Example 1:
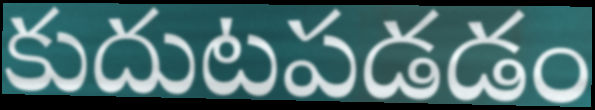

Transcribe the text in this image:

కుదుటపడడం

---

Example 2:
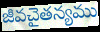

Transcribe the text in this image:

జీవచైతన్యము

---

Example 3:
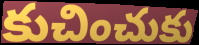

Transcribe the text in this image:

కుచించుకు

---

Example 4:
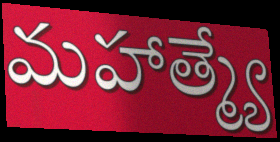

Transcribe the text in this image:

మహాత్మ్యే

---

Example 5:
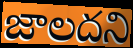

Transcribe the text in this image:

జాలదని